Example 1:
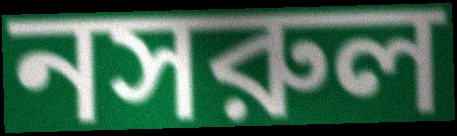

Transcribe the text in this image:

নসরুল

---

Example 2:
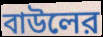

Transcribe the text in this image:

বাউলের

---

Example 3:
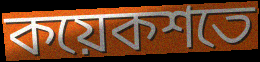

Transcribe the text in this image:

কয়েকশতে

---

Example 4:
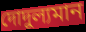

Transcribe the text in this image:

দোদুল্যমান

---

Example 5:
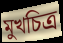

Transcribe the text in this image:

মুখচিত্র